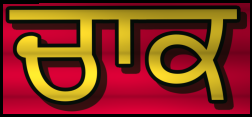
ਚਾਕ